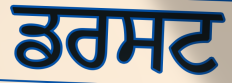
ਡਰਸਟ